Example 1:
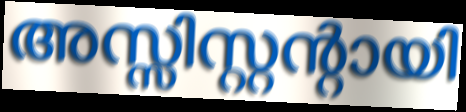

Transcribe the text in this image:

അസ്സിസ്റ്റന്റായി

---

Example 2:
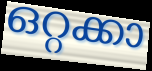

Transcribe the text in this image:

ഒറ്റക്കാ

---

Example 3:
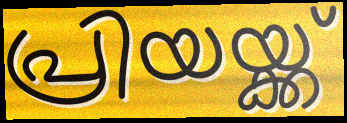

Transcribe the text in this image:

പ്രിയയ്ക്ക്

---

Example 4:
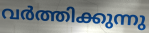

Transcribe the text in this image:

വർത്തിക്കുന്നു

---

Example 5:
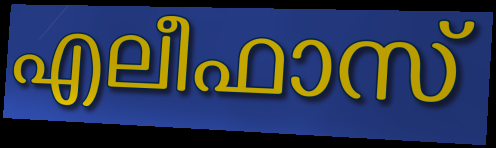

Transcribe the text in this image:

എലീഫാസ്